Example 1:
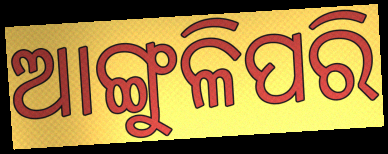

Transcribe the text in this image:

ଆଙ୍ଗୁଳିପରି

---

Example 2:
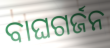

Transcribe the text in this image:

ବାଘଗର୍ଜନ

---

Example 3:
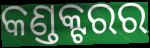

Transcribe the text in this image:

କଣ୍ଡକ୍ଟରର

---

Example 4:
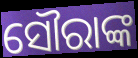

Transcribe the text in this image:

ସୌରାଙ୍କ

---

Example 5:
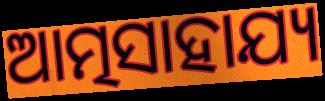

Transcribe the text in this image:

ଆତ୍ମସାହାଯ୍ୟ